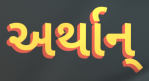
અર્થાન્